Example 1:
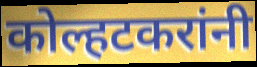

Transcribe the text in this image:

कोल्हटकरांनी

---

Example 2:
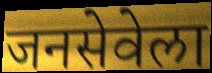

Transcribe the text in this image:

जनसेवेला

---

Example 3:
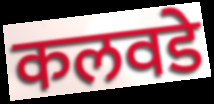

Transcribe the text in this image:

कलवडे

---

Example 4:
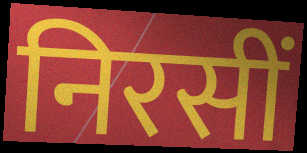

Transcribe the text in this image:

निरसीं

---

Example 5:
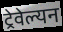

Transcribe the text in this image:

ट्रेवेल्यन